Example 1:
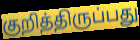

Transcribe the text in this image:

குறித்திருப்பது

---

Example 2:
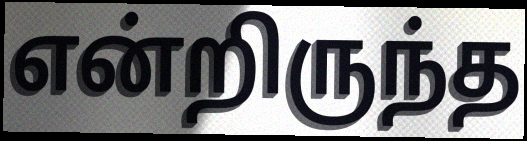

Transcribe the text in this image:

என்றிருந்த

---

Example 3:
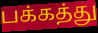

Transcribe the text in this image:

பக்கத்து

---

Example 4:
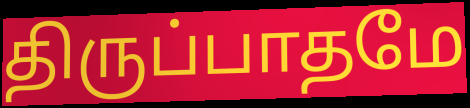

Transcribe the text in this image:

திருப்பாதமே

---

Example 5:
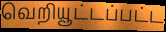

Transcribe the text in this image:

வெறியூட்டப்பட்ட